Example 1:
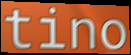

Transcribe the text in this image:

tino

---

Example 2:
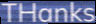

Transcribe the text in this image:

THanks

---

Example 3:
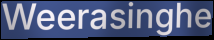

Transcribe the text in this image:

Weerasinghe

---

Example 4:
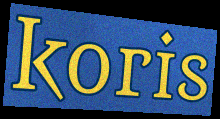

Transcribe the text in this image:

koris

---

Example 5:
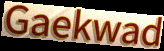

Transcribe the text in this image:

Gaekwad